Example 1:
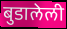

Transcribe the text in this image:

बुडालेली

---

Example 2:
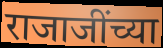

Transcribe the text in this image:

राजाजींच्या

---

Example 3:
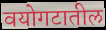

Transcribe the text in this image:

वयोगटातील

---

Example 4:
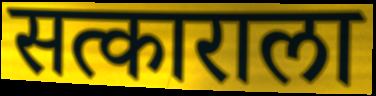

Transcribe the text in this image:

सत्काराला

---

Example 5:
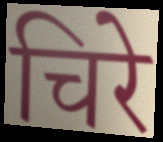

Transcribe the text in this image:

चिरे